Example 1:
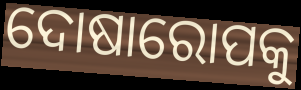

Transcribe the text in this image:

ଦୋଷାରୋପକୁ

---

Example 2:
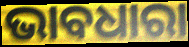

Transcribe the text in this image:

ଭାବଧାରା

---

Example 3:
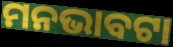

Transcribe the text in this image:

ମନଭାବଟା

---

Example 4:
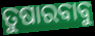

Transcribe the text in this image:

ତୁଷାରବାବୁ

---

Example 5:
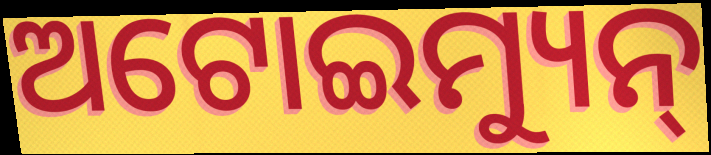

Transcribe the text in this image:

ଅଟୋଇମ୍ୟୁନ୍